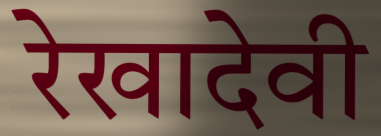
रेखादेवी